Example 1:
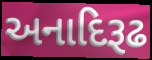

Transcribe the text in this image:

અનાદિરૂઢ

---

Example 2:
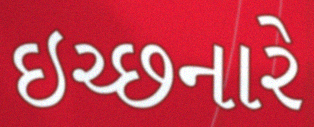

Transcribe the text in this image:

ઇચ્છનારે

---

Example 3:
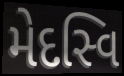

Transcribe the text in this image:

મેદસ્વિ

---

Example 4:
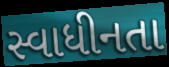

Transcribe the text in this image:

સ્વાધીનતા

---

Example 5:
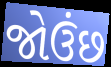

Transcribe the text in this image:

જોઉંછ